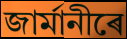
জাৰ্মানীৰে